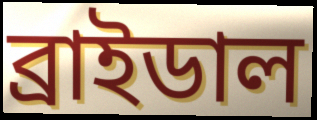
ব্রাইডাল